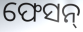
ଫେସନ୍